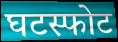
घटस्फोट